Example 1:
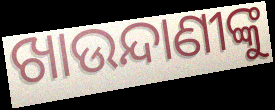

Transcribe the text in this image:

ଖାଉନ୍ଦାଣୀଙ୍କୁ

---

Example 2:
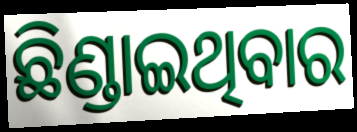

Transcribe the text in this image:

ଛିଣ୍ଡାଇଥିବାର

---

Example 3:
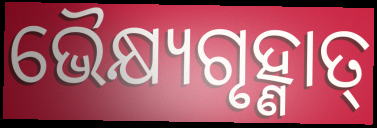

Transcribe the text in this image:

ଭୈକ୍ଷ୍ୟଗୃହ୍ଣାତ୍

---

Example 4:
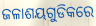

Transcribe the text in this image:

ଜଳାଶୟଗୁଡିକରେ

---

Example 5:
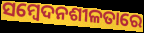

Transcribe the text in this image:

ସମ୍ବେଦନଶୀଳତାରେ